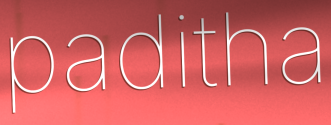
paditha